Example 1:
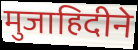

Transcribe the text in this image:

मुजाहिदीने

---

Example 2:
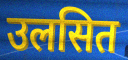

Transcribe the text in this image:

उलसित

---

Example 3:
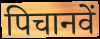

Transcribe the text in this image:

पिचानवें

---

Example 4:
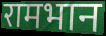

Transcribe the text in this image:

रामभान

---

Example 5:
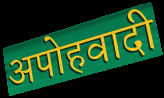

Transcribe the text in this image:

अपोहवादी